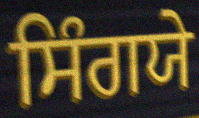
ਸਿੰਗਯੇ